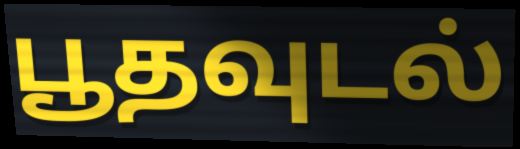
பூதவுடல்